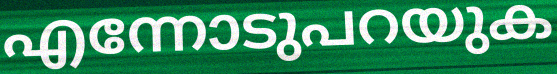
എന്നോടുപറയുക